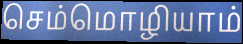
செம்மொழியாம்